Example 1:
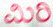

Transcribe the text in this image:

ಮಿರಿ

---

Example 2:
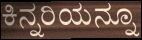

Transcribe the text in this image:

ಕಿನ್ನರಿಯನ್ನೂ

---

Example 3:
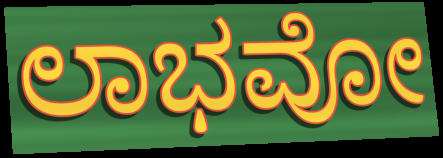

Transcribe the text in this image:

ಲಾಭವೋ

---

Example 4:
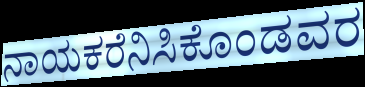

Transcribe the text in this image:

ನಾಯಕರೆನಿಸಿಕೊಂಡವರ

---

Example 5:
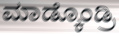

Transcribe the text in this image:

ಮಾಡ್ಕೊಂಡ್ರಿ